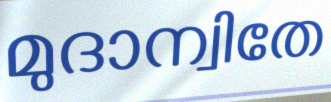
മുദാന്വിതേ